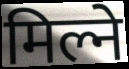
मिल्ने